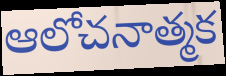
ఆలోచనాత్మక